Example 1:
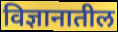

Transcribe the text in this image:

विज्ञानातील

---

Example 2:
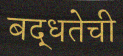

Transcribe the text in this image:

बद्धतेची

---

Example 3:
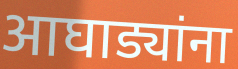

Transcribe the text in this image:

आघाड्यांना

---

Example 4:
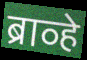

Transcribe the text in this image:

ब्राव्हे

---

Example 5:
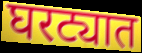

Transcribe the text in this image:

घरट्यात